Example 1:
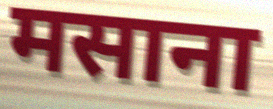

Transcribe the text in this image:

मसाना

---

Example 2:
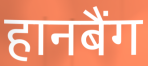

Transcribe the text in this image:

हानबैंग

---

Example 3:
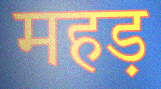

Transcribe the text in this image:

महड़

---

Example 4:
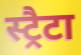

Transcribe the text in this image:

स्ट्रैटा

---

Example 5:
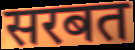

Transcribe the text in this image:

सरबत